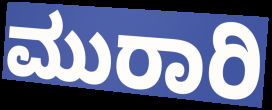
ಮುರಾರಿ